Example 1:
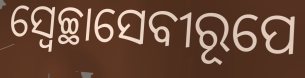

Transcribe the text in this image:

ସ୍ଵେଚ୍ଛାସେବୀରୂପେ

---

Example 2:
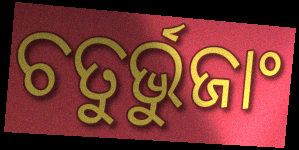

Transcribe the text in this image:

ଚତୁର୍ଭୁଜାଂ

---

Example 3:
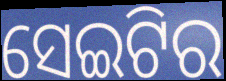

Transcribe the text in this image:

ସେଇଟିର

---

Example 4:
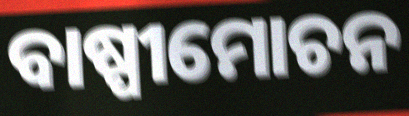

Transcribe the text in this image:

ବାଷ୍ପୀମୋଚନ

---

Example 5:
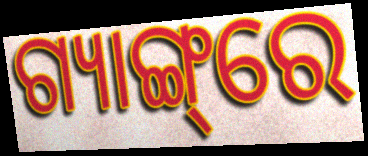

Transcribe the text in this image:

ଗ୍ୟାଙ୍ଗ୍‌ରେ